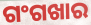
ଗଂଗଖାର